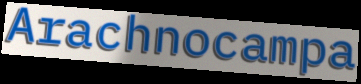
Arachnocampa